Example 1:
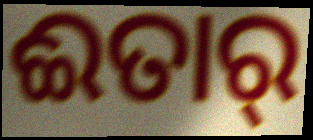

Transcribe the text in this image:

ଈତାର୍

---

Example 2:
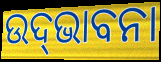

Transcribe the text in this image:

ଉଦ୍‍ଭାବନା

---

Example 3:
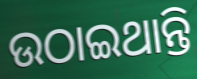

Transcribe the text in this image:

ଉଠାଇଥାନ୍ତି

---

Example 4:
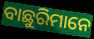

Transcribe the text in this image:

ବାଛୁରିମାନେ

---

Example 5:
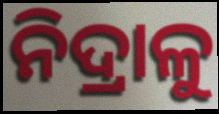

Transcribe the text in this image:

ନିଦ୍ରାଳୁ